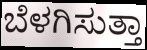
ಬೆಳಗಿಸುತ್ತಾ